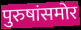
पुरुषांसमोर